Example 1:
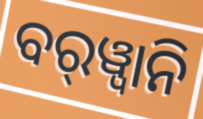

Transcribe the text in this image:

ବର୍‍ୱ୍ୱାନି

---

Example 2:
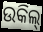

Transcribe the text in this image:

ଉକିଲ୍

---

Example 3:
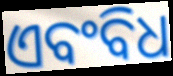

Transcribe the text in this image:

ଏବଂବିଧ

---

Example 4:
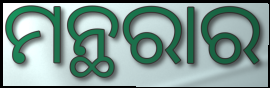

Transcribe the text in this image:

ମନ୍ଥରାର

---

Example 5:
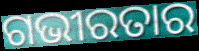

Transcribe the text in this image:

ଗଭୀରତାର